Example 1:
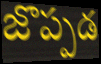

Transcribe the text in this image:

జొప్పడ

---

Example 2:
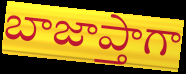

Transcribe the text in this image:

బాజాప్తాగా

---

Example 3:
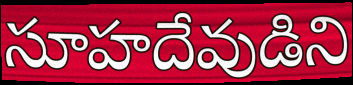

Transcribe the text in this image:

సూహదేవుడిని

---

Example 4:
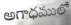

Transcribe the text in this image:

అగాధములో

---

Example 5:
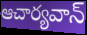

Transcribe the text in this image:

ఆచార్యవాన్